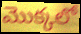
మొక్కలో